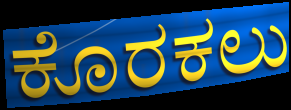
ಕೊರಕಲು